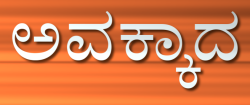
ಅವಕ್ಕಾದ